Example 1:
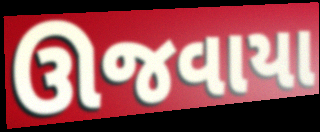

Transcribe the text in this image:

ઊજવાયા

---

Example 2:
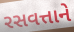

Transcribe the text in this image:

રસવત્તાને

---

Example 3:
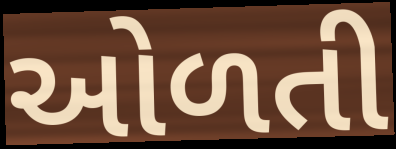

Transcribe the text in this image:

ઓળતી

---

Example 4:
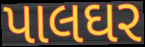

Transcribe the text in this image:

પાલઘર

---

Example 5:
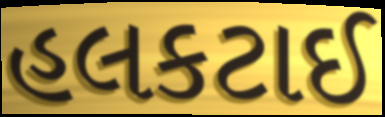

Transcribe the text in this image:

હલકટાઈ